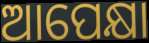
ଆପେକ୍ଷା